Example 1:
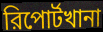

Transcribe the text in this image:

রিপোর্টখানা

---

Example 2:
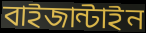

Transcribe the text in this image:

বাইজান্টাইন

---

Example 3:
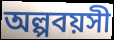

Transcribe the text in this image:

অল্পবয়সী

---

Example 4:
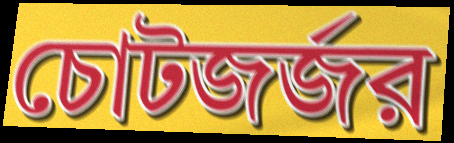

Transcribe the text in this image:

চোটজর্জর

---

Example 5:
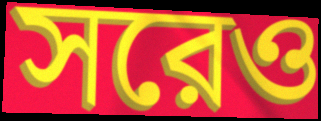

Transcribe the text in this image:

সরেও